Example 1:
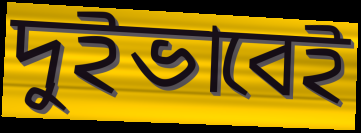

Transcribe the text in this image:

দুইভাবেই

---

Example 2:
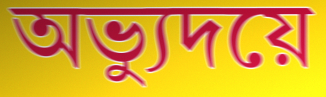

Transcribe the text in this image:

অভ্যুদয়ে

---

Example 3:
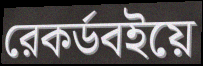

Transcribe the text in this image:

রেকর্ডবইয়ে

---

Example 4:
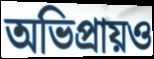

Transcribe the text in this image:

অভিপ্রায়ও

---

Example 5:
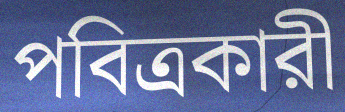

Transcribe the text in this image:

পবিত্রকারী